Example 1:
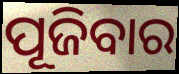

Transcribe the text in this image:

ପୂଜିବାର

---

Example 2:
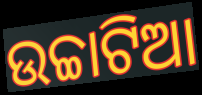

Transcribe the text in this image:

ଉଚ୍ଚାଟିଆ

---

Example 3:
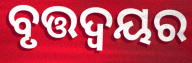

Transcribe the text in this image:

ବୃତ୍ତଦ୍ଵୟର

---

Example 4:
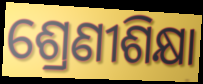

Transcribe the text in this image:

ଶ୍ରେଣୀଶିକ୍ଷା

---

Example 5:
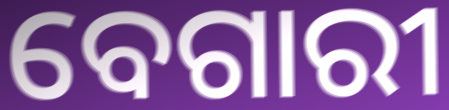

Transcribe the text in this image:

ବେଗାରୀ